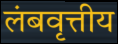
लंबवृत्तीय